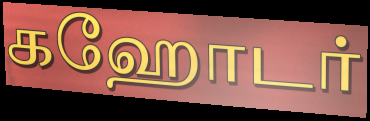
கஹோடர்